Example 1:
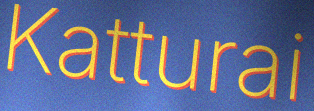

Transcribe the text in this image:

Katturai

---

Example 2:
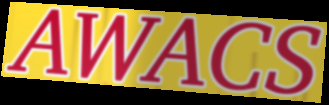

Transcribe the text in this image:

AWACS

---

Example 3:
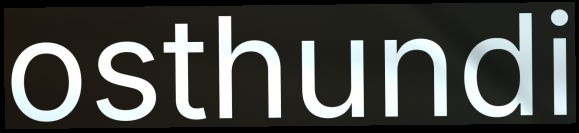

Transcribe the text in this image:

osthundi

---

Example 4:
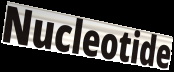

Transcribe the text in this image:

Nucleotide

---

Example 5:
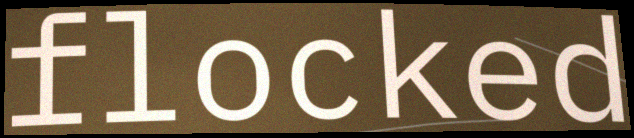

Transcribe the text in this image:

flocked